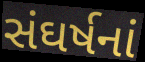
સંઘર્ષનાં